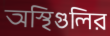
অস্থিগুলির